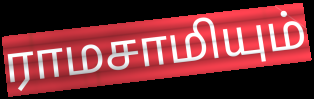
ராமசாமியும்